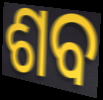
ଶବ